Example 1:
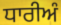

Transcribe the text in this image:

ਧਾਰੀਅੰ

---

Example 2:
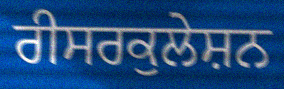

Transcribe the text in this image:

ਰੀਸਰਕੁਲੇਸ਼ਨ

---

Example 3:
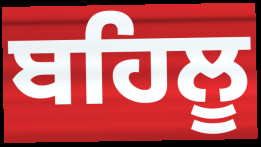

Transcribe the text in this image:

ਬਹਿਲੂ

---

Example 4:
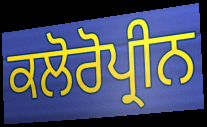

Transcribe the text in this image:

ਕਲੋਰੋਪ੍ਰੀਨ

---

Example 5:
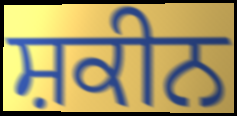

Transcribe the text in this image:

ਸ਼ਕੀਨ